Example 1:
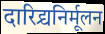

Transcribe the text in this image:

दारिद्र्यनिर्मूलन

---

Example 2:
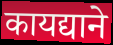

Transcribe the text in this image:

कायद्याने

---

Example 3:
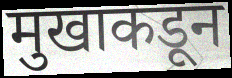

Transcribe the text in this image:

मुखाकडून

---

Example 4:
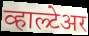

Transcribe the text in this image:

व्हाल्टेअर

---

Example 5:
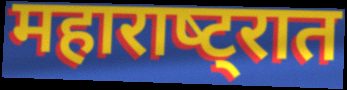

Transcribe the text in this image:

महाराष्‍ट्रात